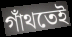
গাঁথতেই